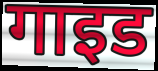
गाइड